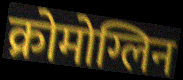
क्रोमोग्लिन